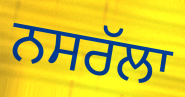
ਨਸਰੱਲਾ